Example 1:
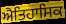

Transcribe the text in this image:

ਐਤਿਹਾਸਿਕ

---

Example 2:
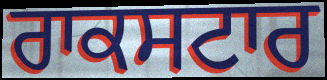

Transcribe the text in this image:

ਰਾਕਸਟਾਰ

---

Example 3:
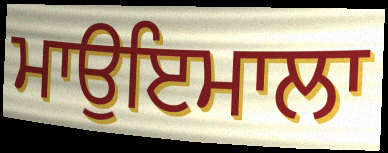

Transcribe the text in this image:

ਮਾਉਇਮਾਲਾ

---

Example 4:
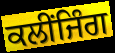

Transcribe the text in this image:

ਕਲੀਂਜਿੰਗ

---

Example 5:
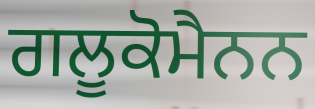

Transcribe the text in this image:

ਗਲੂਕੋਮੈਨਨ